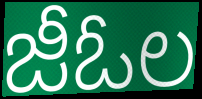
జీఓల